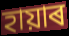
হায়াৰ